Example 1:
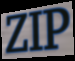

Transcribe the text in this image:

ZIP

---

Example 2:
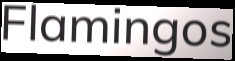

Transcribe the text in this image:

Flamingos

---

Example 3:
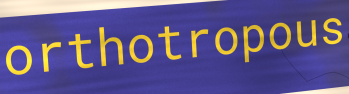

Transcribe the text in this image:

orthotropous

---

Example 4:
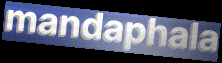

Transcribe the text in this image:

mandaphala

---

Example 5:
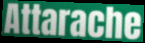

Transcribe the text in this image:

Attarache